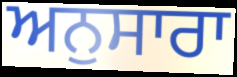
ਅਨੁਸਾਰਾ